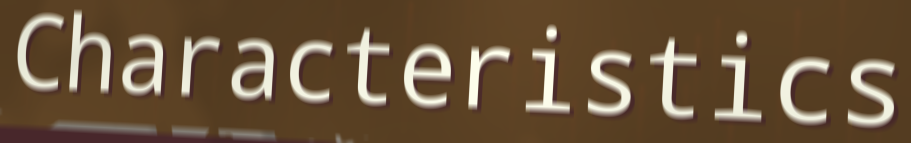
Characteristics